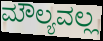
ಮೌಲ್ಯವಲ್ಲ